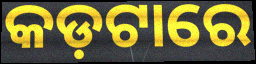
କଡ଼ଟାରେ